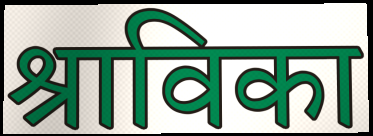
श्राविका